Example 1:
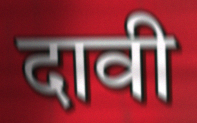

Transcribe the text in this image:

दावी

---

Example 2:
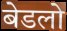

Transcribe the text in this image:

बेडलो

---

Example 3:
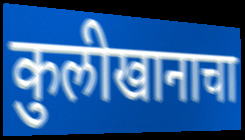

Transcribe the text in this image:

कुलीखानाचा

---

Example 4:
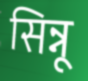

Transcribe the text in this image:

सिन्नू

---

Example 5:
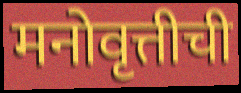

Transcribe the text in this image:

मनोवृत्तीची